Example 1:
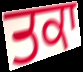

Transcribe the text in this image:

ਤਕਾ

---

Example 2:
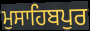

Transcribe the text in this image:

ਮੁਸਾਹਿਬਪੁਰ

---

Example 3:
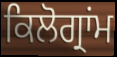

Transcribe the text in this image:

ਕਿਲੋਗ੍ਰਾਂਮ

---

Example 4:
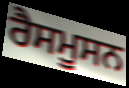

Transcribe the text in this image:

ਰੈਸਮੂਸਨ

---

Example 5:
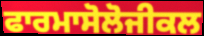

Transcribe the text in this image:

ਫਾਰਮਾਸੋਲੋਜੀਕਲ